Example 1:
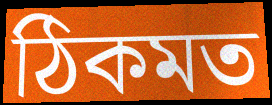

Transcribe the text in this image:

ঠিকমত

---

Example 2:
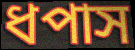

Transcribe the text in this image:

ধপাস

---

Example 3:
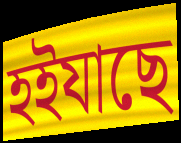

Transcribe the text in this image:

হইযাছে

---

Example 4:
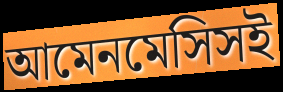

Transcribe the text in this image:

আমেনমেসিসই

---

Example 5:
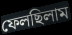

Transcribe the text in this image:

ফেলছিলাম